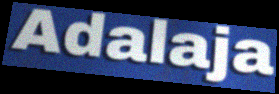
Adalaja